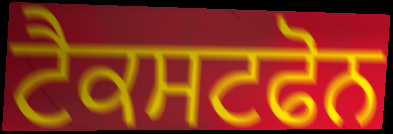
ਟੈਕਸਟਫੋਨ